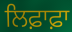
ਲਿਫ਼ਾਫ਼ਾ